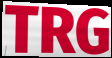
TRG